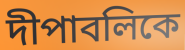
দীপাবলিকে